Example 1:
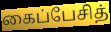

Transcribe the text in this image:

கைப்பேசித்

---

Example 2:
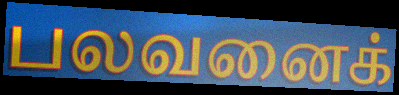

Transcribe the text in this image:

பலவனைக்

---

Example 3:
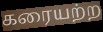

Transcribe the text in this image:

கரையற்ற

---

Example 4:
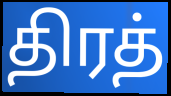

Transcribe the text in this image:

திரத்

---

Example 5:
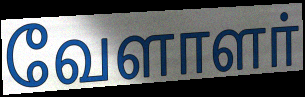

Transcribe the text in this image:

வேளாளர்